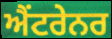
ਐਂਟਰੇਨਰ